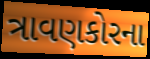
ત્રાવણકોરના